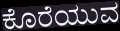
ಕೊರೆಯುವ